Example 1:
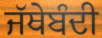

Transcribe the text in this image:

ਜੱਥੇਬੰਦੀ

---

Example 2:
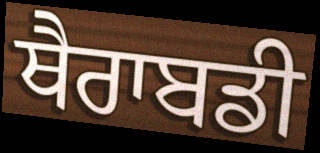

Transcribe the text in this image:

ਥੈਰਾਬਡੀ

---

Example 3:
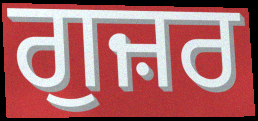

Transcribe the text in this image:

ਗੁਜ਼ਰ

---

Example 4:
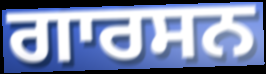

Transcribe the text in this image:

ਗਾਰਸਨ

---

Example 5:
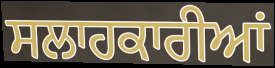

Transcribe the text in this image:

ਸਲਾਹਕਾਰੀਆਂ